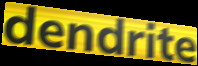
dendrite